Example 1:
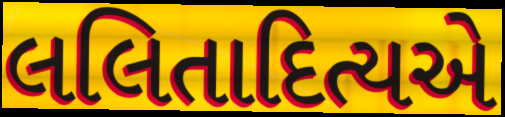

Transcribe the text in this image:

લલિતાદિત્યએ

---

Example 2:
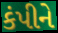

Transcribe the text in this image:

કંપીને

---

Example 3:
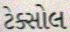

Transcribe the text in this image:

ટેક્સોલ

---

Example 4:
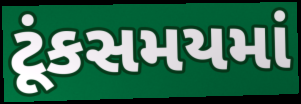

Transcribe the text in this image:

ટૂંકસમયમાં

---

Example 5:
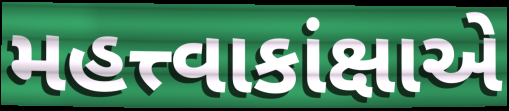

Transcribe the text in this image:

મહત્ત્વાકાંક્ષાએ